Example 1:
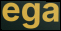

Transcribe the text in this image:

ega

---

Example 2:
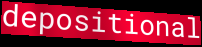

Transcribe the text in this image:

depositional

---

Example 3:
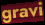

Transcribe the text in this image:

gravi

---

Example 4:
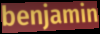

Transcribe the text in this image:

benjamin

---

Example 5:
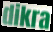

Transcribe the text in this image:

dikra